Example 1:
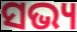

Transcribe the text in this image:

ସଭ୍ୟ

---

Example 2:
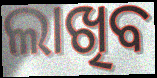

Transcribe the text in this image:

ଲାଖିବ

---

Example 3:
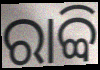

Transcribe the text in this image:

ରାବ୍ବି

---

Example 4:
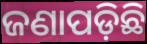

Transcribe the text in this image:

ଜଣାପଡ଼ିଛି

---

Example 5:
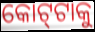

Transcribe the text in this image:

କୋଟ୍‌ଟାକୁ